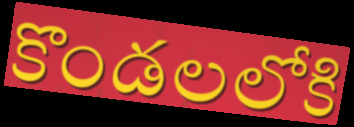
కొండలలోకి